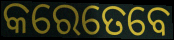
କରେତେବେ